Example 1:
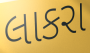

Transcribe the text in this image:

લાકરા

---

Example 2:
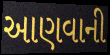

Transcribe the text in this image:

આણવાની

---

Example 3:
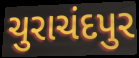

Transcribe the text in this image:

ચુરાચંદપુર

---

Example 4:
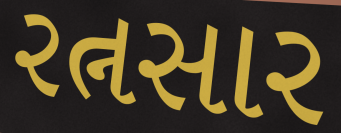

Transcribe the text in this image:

રત્નસાર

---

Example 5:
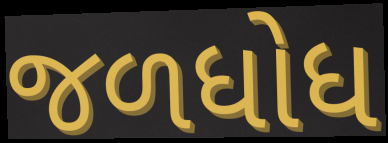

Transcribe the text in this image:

જળધોધ